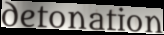
detonation